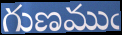
గుణముఁ